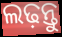
ଲଢ଼ନ୍ତୁ